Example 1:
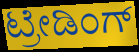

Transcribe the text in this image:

ಟ್ರೇಡಿಂಗ್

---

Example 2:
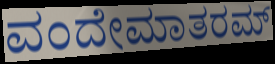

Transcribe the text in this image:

ವಂದೇಮಾತರಮ್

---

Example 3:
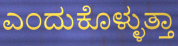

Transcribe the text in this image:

ಎಂದುಕೊಳ್ಳುತ್ತಾ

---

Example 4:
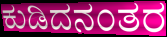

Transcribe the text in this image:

ಕುಡಿದನಂತರ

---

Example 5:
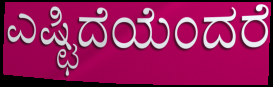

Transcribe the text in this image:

ಎಷ್ಟಿದೆಯೆಂದರೆ